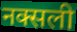
नक्सली